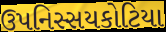
ઉપનિસ્સયકોટિયા